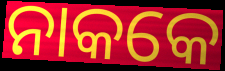
ନାକକେ